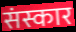
संस्कार